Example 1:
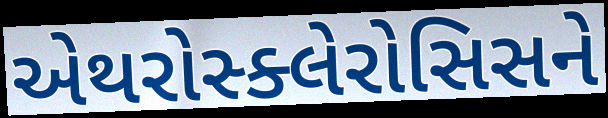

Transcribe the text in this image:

એથરોસ્ક્લેરોસિસને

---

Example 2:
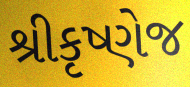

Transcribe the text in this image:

શ્રીકૃષ્ણેજ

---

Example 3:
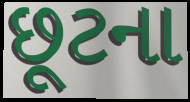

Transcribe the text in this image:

છૂટના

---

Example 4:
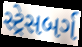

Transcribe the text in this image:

સ્ટ્રેસબર્ગ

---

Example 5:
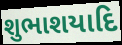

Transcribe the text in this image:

શુભાશયાદિ